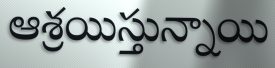
ఆశ్రయిస్తున్నాయి